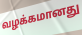
வழக்கமானது